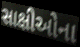
સાક્ષીઓના